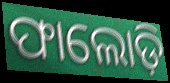
ଫାଲୋଡ଼ି